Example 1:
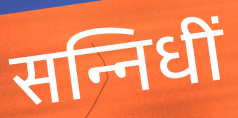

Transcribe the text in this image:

सन्निधीं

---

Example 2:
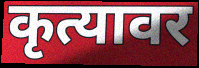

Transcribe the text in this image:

कृत्यावर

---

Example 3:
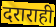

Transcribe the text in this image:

दराराही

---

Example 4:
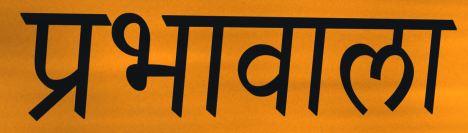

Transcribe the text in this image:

प्रभावाला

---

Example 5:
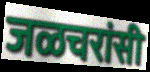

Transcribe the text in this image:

जळचरांसी